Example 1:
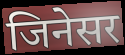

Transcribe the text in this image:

जिनेसर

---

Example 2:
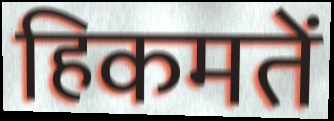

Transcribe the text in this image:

हिकमतें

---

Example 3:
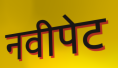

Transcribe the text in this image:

नवीपेट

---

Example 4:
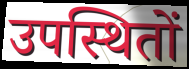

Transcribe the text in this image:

उपस्थितों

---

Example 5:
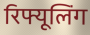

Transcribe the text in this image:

रिफ्यूलिंग